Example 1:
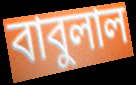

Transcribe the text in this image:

বাবুলাল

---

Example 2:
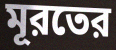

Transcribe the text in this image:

মূরতের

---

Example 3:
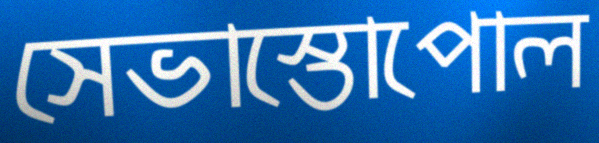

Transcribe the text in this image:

সেভাস্তোপোল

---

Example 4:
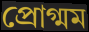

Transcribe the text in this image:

প্রোগ্মম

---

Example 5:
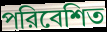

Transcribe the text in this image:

পরিবেশিত